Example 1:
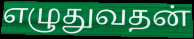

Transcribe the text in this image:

எழுதுவதன்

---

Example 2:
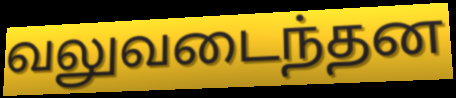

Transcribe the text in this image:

வலுவடைந்தன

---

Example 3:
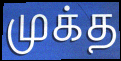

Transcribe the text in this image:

முக்த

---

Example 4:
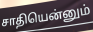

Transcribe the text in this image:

சாதியென்னும்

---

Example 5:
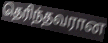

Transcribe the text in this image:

தெரிந்தவரான